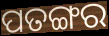
ପତଙ୍ଗର